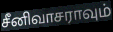
சீனிவாசராவும்